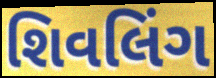
શિવલિંગ